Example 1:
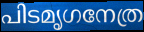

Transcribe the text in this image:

പിടമൃഗനേത്ര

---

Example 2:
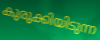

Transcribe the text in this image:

കുരുക്കിയിടുന്ന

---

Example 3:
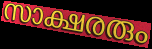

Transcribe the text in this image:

സാക്ഷരരും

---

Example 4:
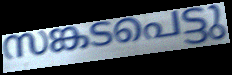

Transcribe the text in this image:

സങ്കടപെട്ടു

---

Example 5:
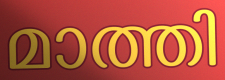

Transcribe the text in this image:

മാത്തി